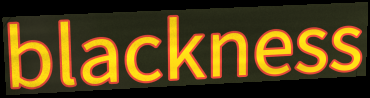
blackness